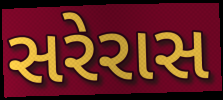
સરેરાસ